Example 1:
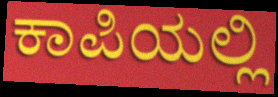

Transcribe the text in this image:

ಕಾಪಿಯಲ್ಲಿ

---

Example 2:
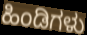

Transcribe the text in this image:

ಹಿಂಡಿಗಳು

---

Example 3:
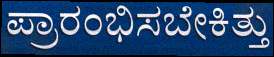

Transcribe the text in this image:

ಪ್ರಾರಂಭಿಸಬೇಕಿತ್ತು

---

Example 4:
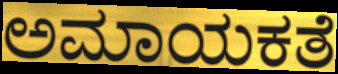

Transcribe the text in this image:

ಅಮಾಯಕತೆ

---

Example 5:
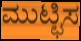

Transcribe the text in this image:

ಮುಟ್ಟಿಸ